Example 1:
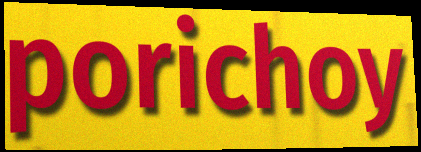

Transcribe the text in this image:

porichoy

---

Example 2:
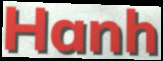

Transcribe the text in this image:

Hanh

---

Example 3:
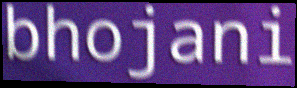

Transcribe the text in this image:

bhojani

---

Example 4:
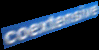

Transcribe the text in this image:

coextensive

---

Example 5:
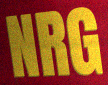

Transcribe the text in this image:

NRG